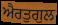
ਐਰਤੁਗੁਲ